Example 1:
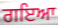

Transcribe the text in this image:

ਗਇਆ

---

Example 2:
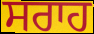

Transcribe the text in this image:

ਸਰਾਹ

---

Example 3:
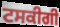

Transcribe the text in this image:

ਟਸਕੀਗੀ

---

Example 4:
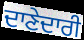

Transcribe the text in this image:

ਦਾਣੇਦਾਰੀ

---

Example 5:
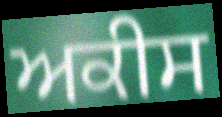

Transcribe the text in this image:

ਅਕੀਸ